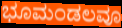
ಭೂಮಂಡಲವೂ